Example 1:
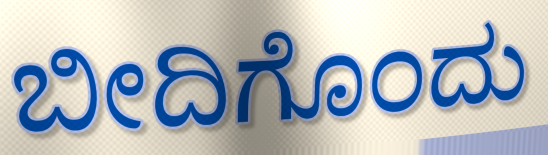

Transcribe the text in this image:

ಬೀದಿಗೊಂದು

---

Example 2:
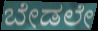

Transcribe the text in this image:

ಬೇಡಲೇ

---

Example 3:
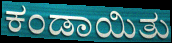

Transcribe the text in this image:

ಕಂಡಾಯಿತು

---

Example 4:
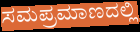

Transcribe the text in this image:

ಸಮಪ್ರಮಾಣದಲ್ಲಿ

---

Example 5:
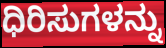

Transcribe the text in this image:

ಧಿರಿಸುಗಳನ್ನು